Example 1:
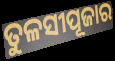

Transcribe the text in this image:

ତୁଳସୀପୂଜାର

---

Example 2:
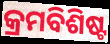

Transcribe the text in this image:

କ୍ରମବିଶିଷ୍ଟ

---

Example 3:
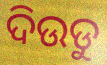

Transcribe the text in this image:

ଦିଉଡୁ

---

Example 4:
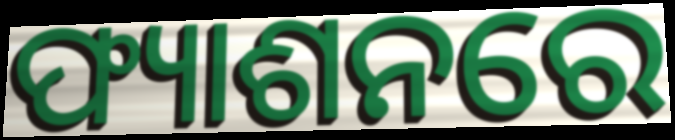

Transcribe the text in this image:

ଫ୍ୟାଶନରେ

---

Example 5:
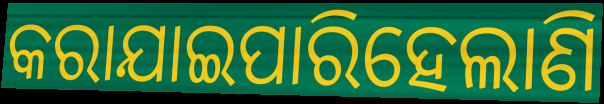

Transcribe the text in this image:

କରାଯାଇପାରିହେଲାଣି